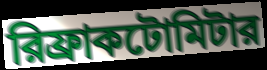
রিফ্রাকটোমিটার